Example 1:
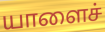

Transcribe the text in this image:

யாளைச்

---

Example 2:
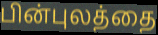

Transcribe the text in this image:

பின்புலத்தை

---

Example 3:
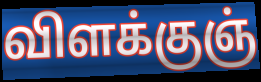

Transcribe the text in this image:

விளக்குஞ்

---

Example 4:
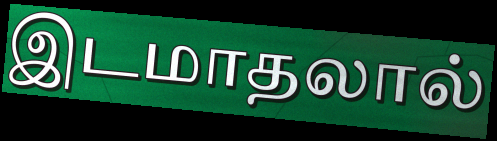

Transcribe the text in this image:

இடமாதலால்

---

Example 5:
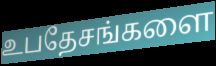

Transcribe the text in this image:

உபதேசங்களை